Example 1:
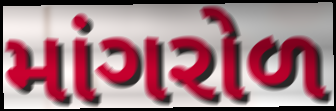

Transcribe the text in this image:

માંગરોળ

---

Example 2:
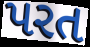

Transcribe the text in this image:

પરત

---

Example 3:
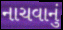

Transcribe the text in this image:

નાચવાનું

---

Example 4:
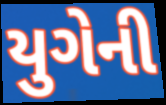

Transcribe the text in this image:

યુગેની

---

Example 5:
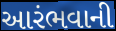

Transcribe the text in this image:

આરંભવાની